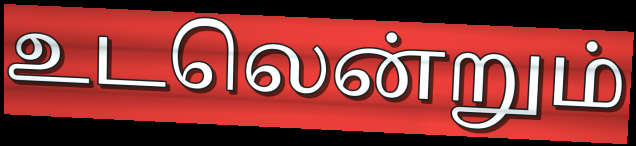
உடலென்றும்